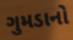
ગુમડાનો